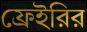
ফ্রেইরির